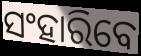
ସଂହାରିବେ